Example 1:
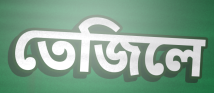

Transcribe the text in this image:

তেজিলে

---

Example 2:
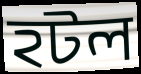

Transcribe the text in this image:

হটল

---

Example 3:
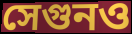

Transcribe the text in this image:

সেগুনও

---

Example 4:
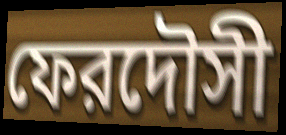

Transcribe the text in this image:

ফেরদৌসী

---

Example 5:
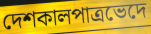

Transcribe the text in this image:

দেশকালপাত্রভেদে